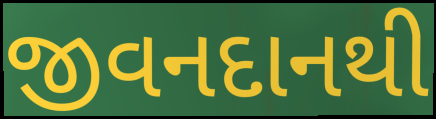
જીવનદાનથી